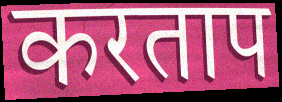
करताप